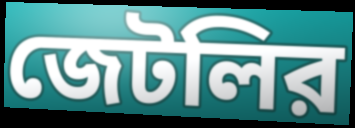
জেটলির